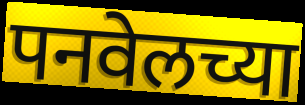
पनवेलच्या